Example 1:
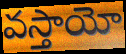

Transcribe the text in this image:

వస్తాయో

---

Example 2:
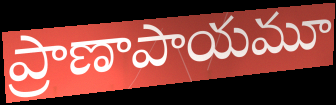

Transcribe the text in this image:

ప్రాణాపాయమూ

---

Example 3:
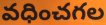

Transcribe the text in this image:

వధించగల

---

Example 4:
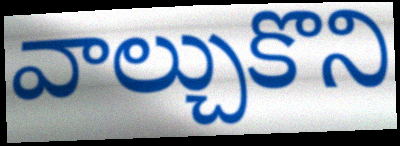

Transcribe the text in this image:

వాల్చుకొని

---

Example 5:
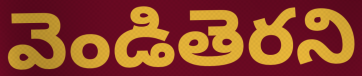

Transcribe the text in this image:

వెండితెరని